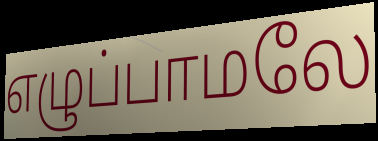
எழுப்பாமலே